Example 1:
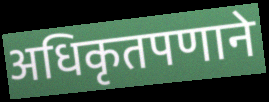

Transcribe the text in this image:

अधिकृतपणाने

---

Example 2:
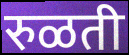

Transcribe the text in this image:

रुळती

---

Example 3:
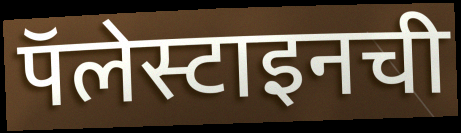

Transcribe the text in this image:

पॅलेस्टाइनची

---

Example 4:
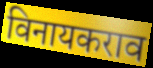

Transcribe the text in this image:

विनायकराव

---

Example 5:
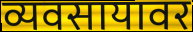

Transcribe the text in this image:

व्यवसायावर